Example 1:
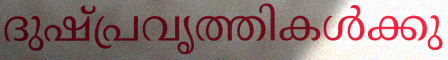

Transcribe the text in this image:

ദുഷ്പ്രവൃത്തികൾക്കു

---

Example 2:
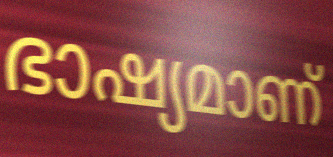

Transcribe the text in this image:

ഭാഷ്യമാണ്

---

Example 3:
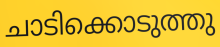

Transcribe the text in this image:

ചാടിക്കൊടുത്തു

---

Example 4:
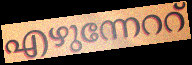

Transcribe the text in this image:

എഴുന്നേററ്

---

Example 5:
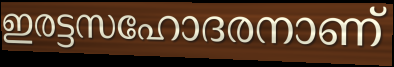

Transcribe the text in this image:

ഇരട്ടസഹോദരനാണ്